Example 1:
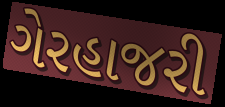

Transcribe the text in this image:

ગેરહાજરી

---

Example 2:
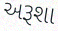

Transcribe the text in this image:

અરૂશા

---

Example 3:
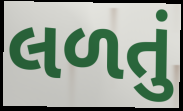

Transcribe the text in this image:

લળતું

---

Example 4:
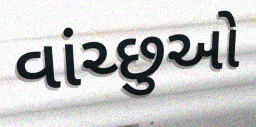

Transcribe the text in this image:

વાંચ્છુઓ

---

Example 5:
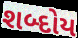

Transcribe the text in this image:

શબ્દોય